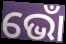
ଭୋଁ